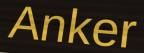
Anker